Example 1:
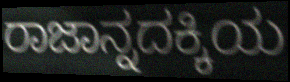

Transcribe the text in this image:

ರಾಜಾನ್ನದಕ್ಕಿಯ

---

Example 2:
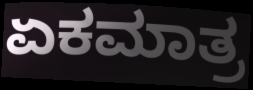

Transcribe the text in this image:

ಏಕಮಾತ್ರ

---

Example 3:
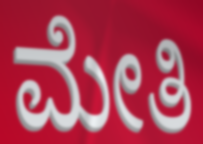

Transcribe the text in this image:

ಮೇತಿ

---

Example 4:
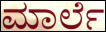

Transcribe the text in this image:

ಮಾರ್ಲೆ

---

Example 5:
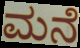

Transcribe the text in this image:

ಮನೆ